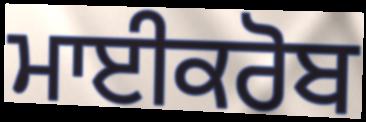
ਮਾਈਕਰੋਬ